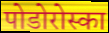
पोडोरोस्का